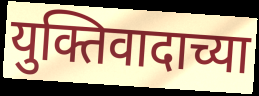
युक्तिवादाच्या